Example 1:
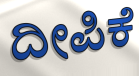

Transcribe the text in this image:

ದೀಪಿಕೆ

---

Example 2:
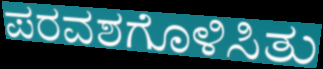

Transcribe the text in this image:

ಪರವಶಗೊಳಿಸಿತು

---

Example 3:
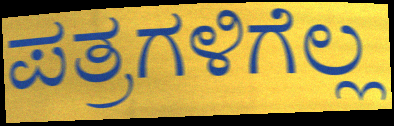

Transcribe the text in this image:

ಪತ್ರಗಳಿಗೆಲ್ಲ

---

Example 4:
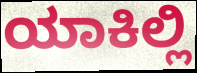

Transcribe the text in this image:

ಯಾಕಿಲ್ಲಿ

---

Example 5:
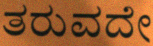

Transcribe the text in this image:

ತರುವದೇ